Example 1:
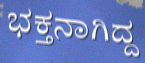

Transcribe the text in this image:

ಭಕ್ತನಾಗಿದ್ದ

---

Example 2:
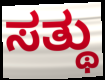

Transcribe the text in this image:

ಸತ್ಥು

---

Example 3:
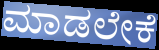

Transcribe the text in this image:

ಮಾಡಲೇಕೆ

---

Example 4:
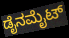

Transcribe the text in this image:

ಡೈನಮೈಟ್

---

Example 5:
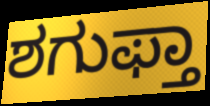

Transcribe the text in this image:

ಶಗುಫ್ತಾ